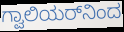
ಗ್ವಾಲಿಯರ್‌ನಿಂದ